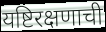
यष्टिरक्षणाची